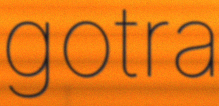
gotra